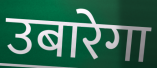
उबारेगा